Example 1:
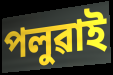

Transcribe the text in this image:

পলুৱাই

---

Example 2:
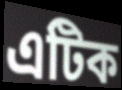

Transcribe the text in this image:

এটিক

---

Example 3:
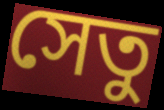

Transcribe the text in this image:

সেতু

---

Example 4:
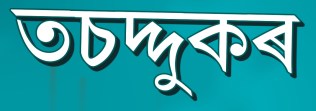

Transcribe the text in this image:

তচদ্দুকৰ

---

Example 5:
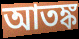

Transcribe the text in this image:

আতঙ্ক